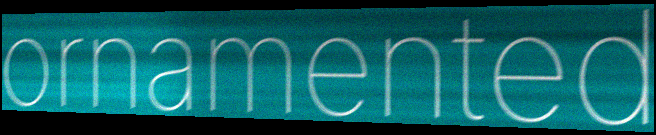
ornamented